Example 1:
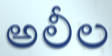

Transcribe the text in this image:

అలీల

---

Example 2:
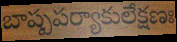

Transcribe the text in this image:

బాష్పపర్యాకులేక్షణః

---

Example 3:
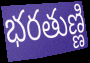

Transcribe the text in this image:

భరతుణ్ణి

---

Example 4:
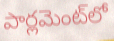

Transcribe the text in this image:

పార్లమెంట్‌లో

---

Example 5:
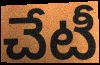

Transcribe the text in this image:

చేటీ